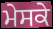
ਮੇਸਕੇ